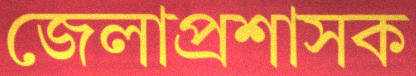
জেলাপ্রশাসক